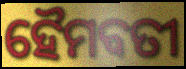
ହୈମବତୀ